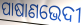
ପାଷାଣଭେଦୀ